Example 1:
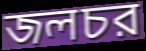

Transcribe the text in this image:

জলচর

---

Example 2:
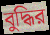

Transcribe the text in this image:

বুদ্ধির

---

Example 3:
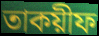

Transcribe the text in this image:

তাকয়ীফ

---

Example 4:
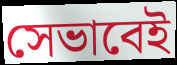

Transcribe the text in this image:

সেভাবেই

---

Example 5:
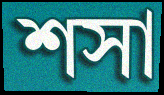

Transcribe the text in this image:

শসা